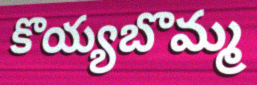
కొయ్యబొమ్మ